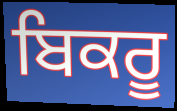
ਬਿਕਰੂ